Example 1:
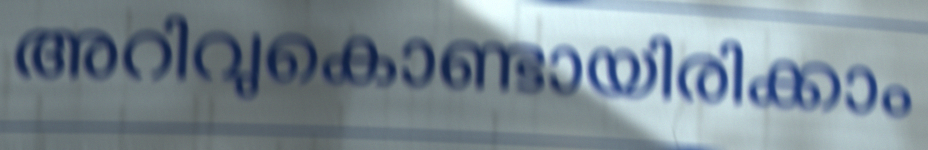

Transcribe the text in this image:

അറിവുകൊണ്ടായിരിക്കാം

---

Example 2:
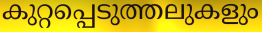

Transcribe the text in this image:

കുറ്റപ്പെടുത്തലുകളും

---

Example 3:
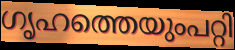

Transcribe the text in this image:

ഗൃഹത്തെയുംപറ്റി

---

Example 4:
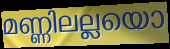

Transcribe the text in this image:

മണ്ണിലല്ലയൊ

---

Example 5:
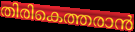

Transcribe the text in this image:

തിരികെത്തരാൻ